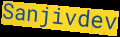
Sanjivdev